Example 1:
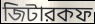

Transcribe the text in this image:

জিটারকফ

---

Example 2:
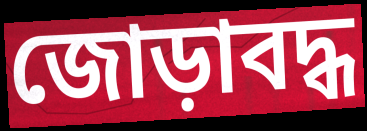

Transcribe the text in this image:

জোড়াবদ্ধ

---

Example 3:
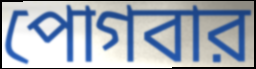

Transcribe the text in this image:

পোগবার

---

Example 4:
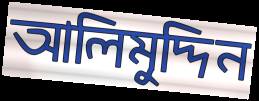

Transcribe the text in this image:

আলিমুদ্দিন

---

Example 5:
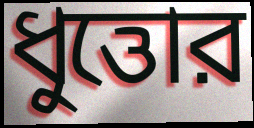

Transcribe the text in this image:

ধুত্তোর